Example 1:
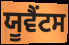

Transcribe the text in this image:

ਯੂਵੈਂਟਸ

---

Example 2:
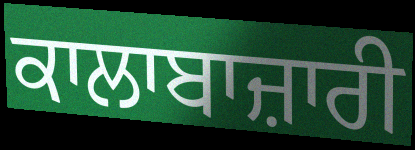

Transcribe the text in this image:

ਕਾਲਾਬਾਜ਼ਾਰੀ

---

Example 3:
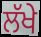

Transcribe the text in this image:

ਲੱਖੇ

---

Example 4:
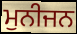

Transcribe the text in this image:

ਮੁਨੀਜਨ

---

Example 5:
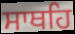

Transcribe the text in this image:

ਸਾਥਹਿ